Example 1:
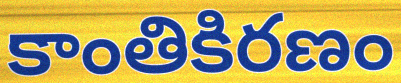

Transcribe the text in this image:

కాంతికిరణం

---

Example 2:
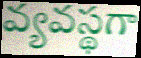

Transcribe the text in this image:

వ్యవస్థగా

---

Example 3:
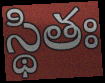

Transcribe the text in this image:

స్థితః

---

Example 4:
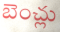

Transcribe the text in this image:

బెంచ్లు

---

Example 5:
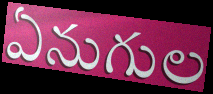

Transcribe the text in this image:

ఏనుగుల